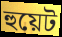
হুয়েট